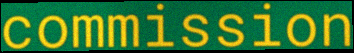
commission